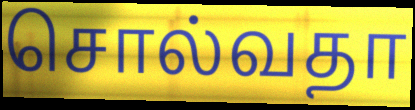
சொல்வதா